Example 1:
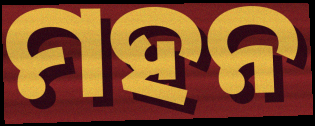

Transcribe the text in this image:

ମହନ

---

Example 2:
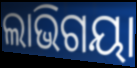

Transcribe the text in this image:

ଲାଭିଗୟା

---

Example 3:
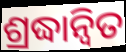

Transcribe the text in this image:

ଶ୍ରଦ୍ଧାନ୍ୱିତ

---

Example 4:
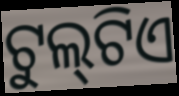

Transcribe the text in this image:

ଟୁଲ୍‍ଟିଏ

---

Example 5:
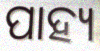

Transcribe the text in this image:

ପାହ୍ୟ